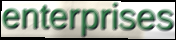
enterprises